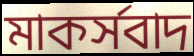
মাকর্সবাদ